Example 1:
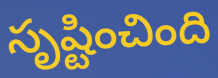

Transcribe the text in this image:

సృష్టించింది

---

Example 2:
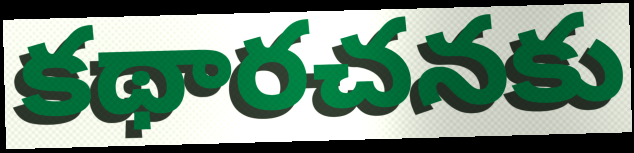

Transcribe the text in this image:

కథారచనకు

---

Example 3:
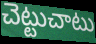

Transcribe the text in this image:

చెట్టుచాటు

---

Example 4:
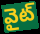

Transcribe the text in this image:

వైట్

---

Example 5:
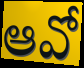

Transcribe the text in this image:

ఆవో